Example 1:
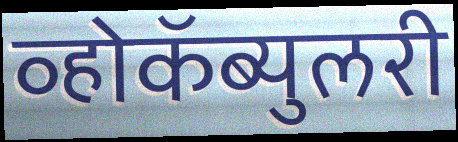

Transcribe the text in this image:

व्होकॅब्युलरी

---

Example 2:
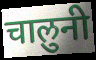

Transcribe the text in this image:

चालुनी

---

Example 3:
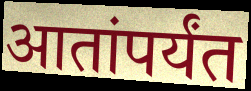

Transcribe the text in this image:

आतांपर्यंत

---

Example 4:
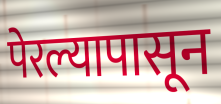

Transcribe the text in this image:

पेरल्यापासून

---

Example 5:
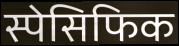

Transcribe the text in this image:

स्पेसिफिक